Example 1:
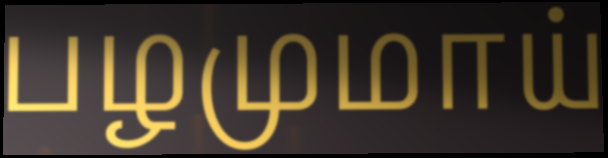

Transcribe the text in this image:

பழமுமாய்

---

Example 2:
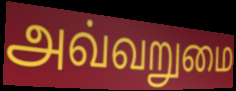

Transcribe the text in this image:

அவ்வறுமை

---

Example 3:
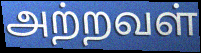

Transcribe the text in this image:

அற்றவள்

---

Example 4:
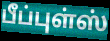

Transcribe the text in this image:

பீப்புள்ஸ்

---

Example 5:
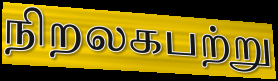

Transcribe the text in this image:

நிறலகபற்று